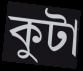
কুটা